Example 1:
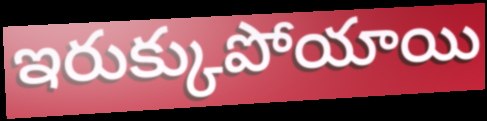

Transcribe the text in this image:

ఇరుక్కుపోయాయి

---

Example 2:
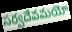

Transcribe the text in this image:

సర్వదేవమయో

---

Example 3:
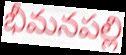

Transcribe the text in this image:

భీమనపల్లి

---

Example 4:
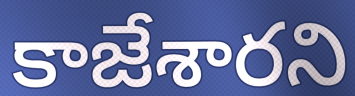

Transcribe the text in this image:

కాజేశారని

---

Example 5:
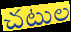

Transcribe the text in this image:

చటుల